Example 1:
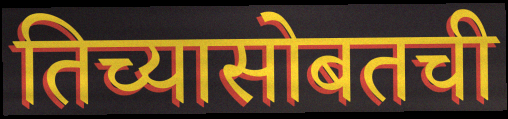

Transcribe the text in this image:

तिच्यासोबतची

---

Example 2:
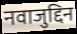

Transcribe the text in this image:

नवाजुद्दिन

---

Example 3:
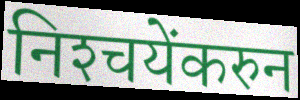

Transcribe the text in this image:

निश्चयेंकरुन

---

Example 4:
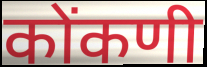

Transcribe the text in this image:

कोंकणी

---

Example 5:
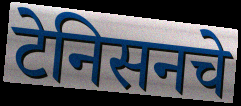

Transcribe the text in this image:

टेनिसनचे